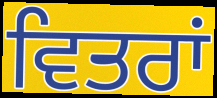
ਵਿਤਰਾਂ